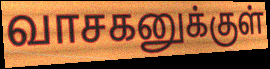
வாசகனுக்குள்